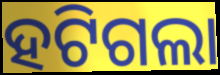
ହଟିଗଲା